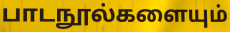
பாடநூல்களையும்